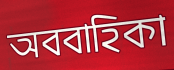
অববাহিকা